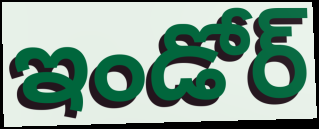
ఇండోర్